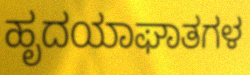
ಹೃದಯಾಘಾತಗಳ